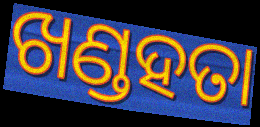
ଖଣ୍ଡହତା